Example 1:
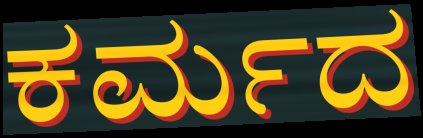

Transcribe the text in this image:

ಕರ್ಮದ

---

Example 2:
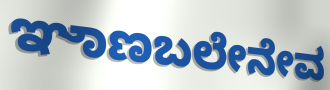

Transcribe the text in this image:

ಞಾಣಬಲೇನೇವ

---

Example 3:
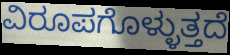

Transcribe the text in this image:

ವಿರೂಪಗೊಳ್ಳುತ್ತದೆ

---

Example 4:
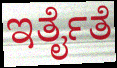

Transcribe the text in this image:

ಇರ್ತೈತೆ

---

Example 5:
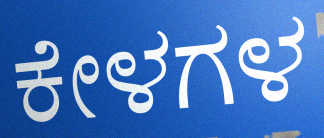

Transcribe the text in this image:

ಕೇಳಗಳ